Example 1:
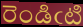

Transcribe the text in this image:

రెండిఁటి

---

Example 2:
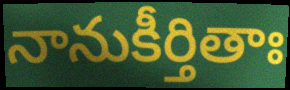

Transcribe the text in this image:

నానుకీర్తితాః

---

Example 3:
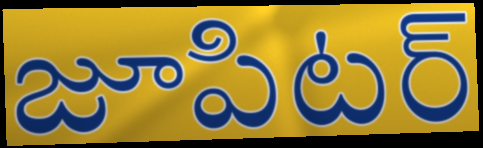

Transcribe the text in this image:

జూపిటర్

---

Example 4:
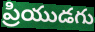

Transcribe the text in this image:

ప్రియుడగు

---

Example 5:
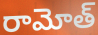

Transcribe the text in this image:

రామోత్